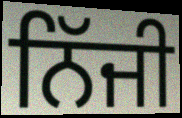
ਨਿੱਜੀ